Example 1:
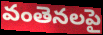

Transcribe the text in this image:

వంతెనలపై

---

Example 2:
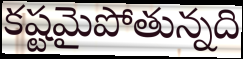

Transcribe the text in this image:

కష్టమైపోతున్నది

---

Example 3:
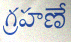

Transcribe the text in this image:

గ్రహణే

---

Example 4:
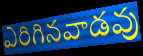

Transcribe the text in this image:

ఎరిగినవాడవు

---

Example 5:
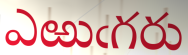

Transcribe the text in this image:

ఎఱుఁగరు